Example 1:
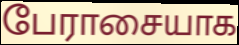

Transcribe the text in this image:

பேராசையாக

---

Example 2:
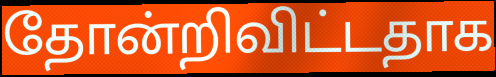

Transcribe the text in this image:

தோன்றிவிட்டதாக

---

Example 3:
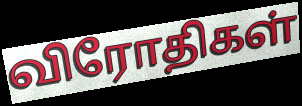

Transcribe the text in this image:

விரோதிகள்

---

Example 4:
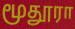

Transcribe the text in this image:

மூதூரா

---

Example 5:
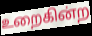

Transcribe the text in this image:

உறைகின்ற